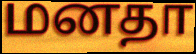
மனதா